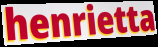
henrietta